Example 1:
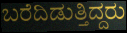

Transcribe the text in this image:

ಬರೆದಿಡುತ್ತಿದ್ದರು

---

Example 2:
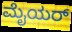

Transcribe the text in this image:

ಮೈಯರ್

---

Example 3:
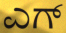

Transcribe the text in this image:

ಎಗ್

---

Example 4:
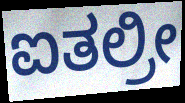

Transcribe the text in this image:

ಐತಲ್ರೀ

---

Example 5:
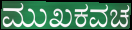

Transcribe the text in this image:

ಮುಖಕವಚ